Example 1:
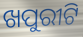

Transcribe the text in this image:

ଖପୁରୀଟି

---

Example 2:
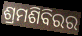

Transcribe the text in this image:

ଶ୍ରମଶିବିରର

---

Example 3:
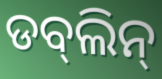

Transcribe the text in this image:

ଡବ୍‌ଲିନ୍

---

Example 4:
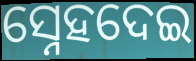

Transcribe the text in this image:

ସ୍ନେହଦେଇ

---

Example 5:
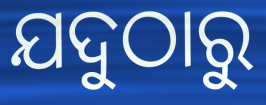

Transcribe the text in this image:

ଯଦୁଠାରୁ